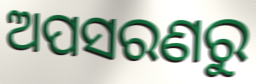
ଅପସରଣରୁ